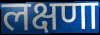
लक्षणा